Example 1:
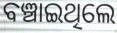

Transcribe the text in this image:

ବଞ୍ଚାଇଥିଲେ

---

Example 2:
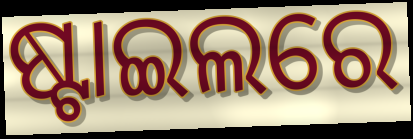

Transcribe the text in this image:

ଷ୍ଟାଇଲରେ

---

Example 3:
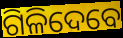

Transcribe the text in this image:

ଗିଳିଦେବେ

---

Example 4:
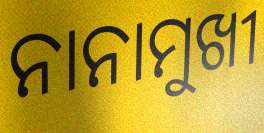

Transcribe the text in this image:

ନାନାମୁଖୀ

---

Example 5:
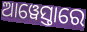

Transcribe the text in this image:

ଆୱେସ୍ତାରେ